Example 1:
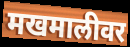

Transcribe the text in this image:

मखमालीवर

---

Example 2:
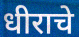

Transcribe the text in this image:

धीराचे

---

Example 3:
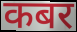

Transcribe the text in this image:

कबर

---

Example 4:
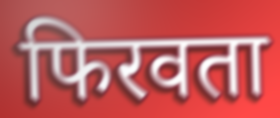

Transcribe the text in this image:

फिरवता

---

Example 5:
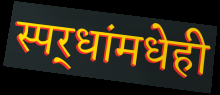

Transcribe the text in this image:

स्पर्धांमधेही